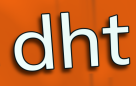
dht